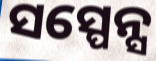
ସସ୍ପେନ୍ସ